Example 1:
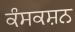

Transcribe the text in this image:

ਕੰਸਕਸ਼ਨ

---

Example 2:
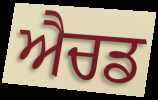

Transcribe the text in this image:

ਐਚਡ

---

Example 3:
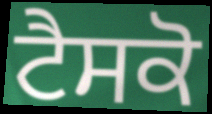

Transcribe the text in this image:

ਟੈਸਕੋ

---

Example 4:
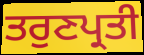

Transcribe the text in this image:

ਤਰੁਣਪ੍ਰਤੀ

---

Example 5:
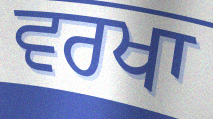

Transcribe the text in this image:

ਵਰਖਾ